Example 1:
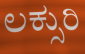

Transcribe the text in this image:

ಲಕ್ಸುರಿ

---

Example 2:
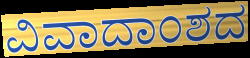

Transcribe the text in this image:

ವಿವಾದಾಂಶದ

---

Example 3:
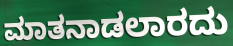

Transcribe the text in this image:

ಮಾತನಾಡಲಾರದು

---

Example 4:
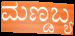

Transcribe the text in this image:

ಮಣ್ಡಬ್ಯ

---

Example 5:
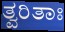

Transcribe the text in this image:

ತ್ವರಿತಾಃ